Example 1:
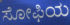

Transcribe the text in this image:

ಸೋಫಿಯ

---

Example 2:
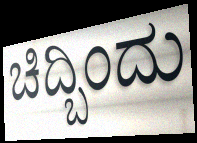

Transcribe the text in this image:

ಚಿದ್ಬಿಂದು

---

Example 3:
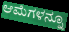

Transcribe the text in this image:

ಆಮೆಗಳನ್ನೂ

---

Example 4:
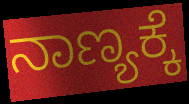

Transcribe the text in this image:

ನಾಣ್ಯಕ್ಕೆ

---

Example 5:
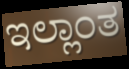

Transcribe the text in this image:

ಇಲ್ಲಾಂತ